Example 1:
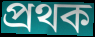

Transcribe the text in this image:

প্রথক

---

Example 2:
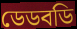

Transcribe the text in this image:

ডেডবডি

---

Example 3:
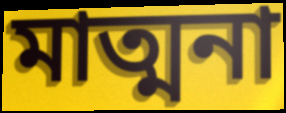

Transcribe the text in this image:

মাত্মনা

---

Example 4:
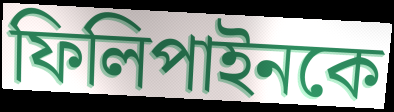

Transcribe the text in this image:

ফিলিপাইনকে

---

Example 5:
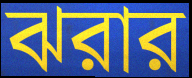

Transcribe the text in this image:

ঝরার